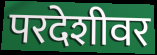
परदेशीवर